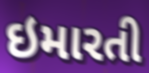
ઇમારતી